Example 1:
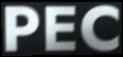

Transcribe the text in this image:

PEC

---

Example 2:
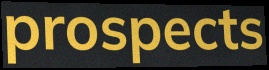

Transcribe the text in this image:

prospects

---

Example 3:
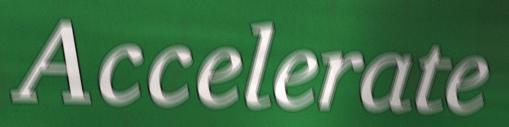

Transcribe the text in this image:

Accelerate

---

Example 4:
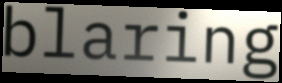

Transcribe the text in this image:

blaring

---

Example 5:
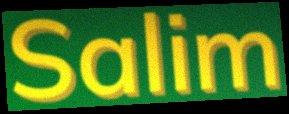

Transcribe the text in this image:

Salim